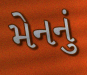
મેનનું